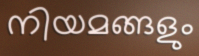
നിയമങ്ങളും